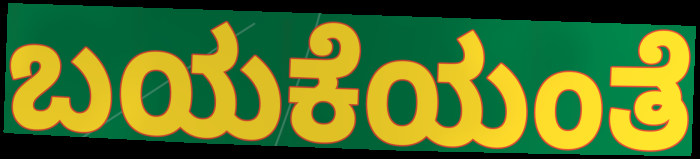
ಬಯಕೆಯಂತೆ